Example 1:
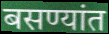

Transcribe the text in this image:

बसण्यांत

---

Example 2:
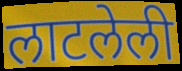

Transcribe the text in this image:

लाटलेली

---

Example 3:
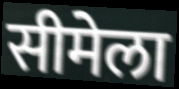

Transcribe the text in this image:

सीमेला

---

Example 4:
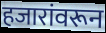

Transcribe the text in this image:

हजारांवरून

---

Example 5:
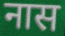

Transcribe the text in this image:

नास